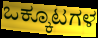
ಒಕ್ಕೂಟಗಳ